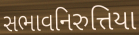
સભાવનિરુત્તિયા